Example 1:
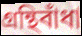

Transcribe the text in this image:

গ্রন্থিবাঁধা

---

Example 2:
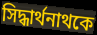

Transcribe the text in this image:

সিদ্ধার্থনাথকে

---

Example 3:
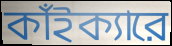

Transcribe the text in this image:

কাঁইক্যারে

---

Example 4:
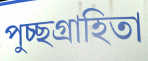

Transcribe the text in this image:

পুচ্ছগ্রাহিতা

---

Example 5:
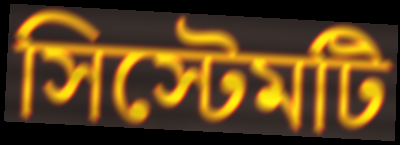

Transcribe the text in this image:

সিস্টেমটি